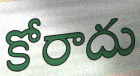
కోరాదు